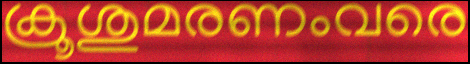
ക്രൂശുമരണംവരെ